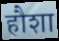
हौशा